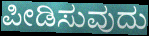
ಪೀಡಿಸುವುದು